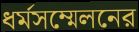
ধর্মসম্মেলনের